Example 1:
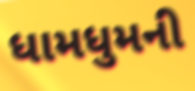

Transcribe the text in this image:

ધામધુમની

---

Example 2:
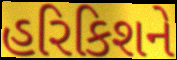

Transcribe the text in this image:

હરિકિશને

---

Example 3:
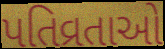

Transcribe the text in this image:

પતિવ્રતાઓ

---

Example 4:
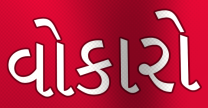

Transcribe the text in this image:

વોકારો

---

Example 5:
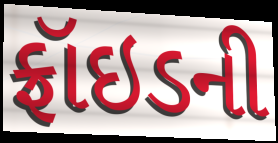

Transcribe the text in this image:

ફ્રૉઇડની